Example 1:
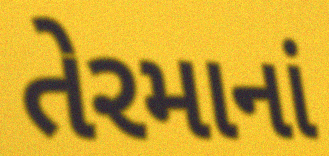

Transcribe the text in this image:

તેરમાનાં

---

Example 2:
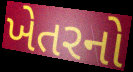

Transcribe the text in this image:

ખેતરનો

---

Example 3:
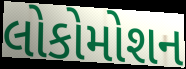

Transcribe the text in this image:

લોકોમોશન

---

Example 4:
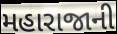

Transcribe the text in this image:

મહારાજાની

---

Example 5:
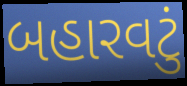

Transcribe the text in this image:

બહારવટું